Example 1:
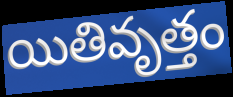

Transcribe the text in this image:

యితివృత్తం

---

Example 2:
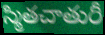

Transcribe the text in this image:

స్మితచాతురీ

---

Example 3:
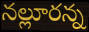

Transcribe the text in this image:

నల్లూరన్న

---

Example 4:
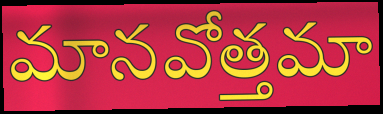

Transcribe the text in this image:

మానవోత్తమా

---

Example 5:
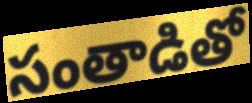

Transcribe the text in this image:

సంతాడితో